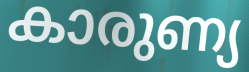
കാരുണ്യ